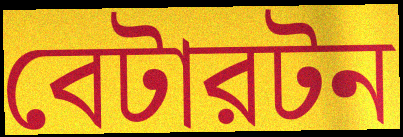
বেটারটন